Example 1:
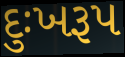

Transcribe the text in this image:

દુઃખરૂપ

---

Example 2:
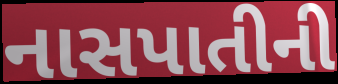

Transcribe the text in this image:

નાસપાતીની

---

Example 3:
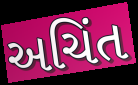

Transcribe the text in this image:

અચિંત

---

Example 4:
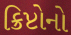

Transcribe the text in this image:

ક્રિપ્ટોનો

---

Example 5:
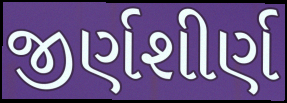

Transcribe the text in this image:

જીર્ણશીર્ણ